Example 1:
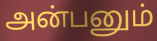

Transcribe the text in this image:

அன்பனும்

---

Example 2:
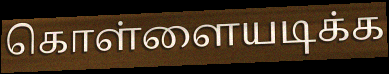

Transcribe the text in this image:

கொள்ளையடிக்க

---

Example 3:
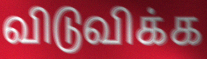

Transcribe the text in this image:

விடுவிக்க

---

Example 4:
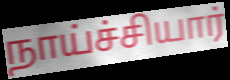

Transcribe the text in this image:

நாய்ச்சியார்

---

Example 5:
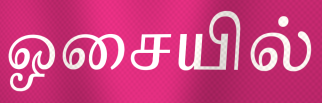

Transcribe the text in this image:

ஓசையில்